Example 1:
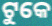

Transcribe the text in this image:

ଟୁକେ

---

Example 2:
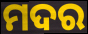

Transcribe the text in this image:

ମଦର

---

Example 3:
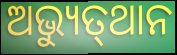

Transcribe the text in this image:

ଅଭ୍ୟୁତ୍‌ଥାନ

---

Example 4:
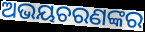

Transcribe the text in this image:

ଅଭୟଚରଣଙ୍କର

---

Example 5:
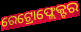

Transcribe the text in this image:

ରେଟ୍ରୋଫ୍ଲେକ୍ଟର